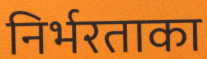
निर्भरताका